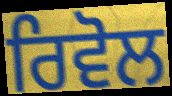
ਰਿਵੋਲ